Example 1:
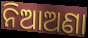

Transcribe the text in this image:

ନିଆଅଣା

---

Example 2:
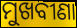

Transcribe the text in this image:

ମୁଖବୀଣା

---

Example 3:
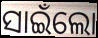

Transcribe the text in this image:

ସାଇଁଲୋ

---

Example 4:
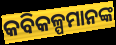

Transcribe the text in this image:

କବିକଳ୍ପମାନଙ୍କ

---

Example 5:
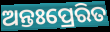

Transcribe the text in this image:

ଅନ୍ତଃପ୍ରେରିତ